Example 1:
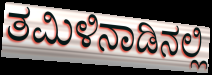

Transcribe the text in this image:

ತಮಿಳಿನಾಡಿನಲ್ಲಿ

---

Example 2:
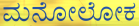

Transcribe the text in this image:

ಮನೋಲೋಕ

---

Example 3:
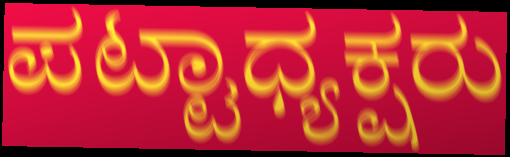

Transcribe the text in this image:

ಪಟ್ಟಾಧ್ಯಕ್ಷರು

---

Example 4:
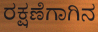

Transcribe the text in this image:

ರಕ್ಷಣೆಗಾಗಿನ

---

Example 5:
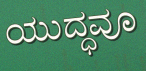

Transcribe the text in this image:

ಯುದ್ಧವೂ